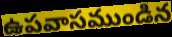
ఉపవాసముండిన